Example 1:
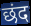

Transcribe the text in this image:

छंद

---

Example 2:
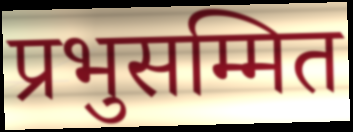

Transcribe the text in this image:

प्रभुसम्मित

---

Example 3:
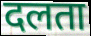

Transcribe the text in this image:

दलता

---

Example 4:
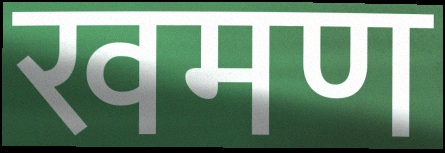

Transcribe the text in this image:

खमण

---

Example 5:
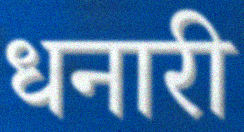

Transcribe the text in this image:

धनारी